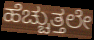
ಹೆಚ್ಚುತ್ತಲೇ